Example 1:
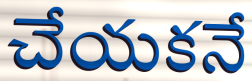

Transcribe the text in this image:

చేయకనే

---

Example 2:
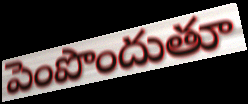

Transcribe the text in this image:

పెంపొందుతూ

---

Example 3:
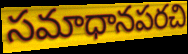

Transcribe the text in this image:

సమాధానపరచి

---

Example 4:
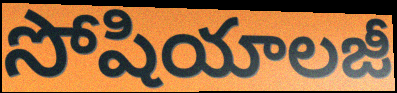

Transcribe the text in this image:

సోషియాలజీ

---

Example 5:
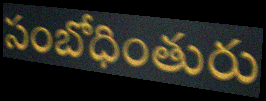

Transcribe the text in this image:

సంబోధింతురు